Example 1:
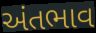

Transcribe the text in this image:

અંતભાવ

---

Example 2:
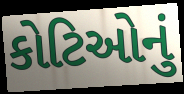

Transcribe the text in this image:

કોટિઓનું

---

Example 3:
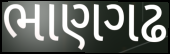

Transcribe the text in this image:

ભાણગઢ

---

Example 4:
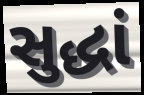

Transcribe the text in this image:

સુદ્ધાં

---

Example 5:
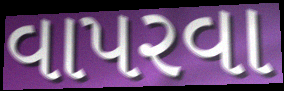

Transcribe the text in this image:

વાપરવા